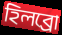
হিলব্রো